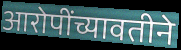
आरोपींच्यावतीने